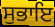
ਸੁਭਾਇ